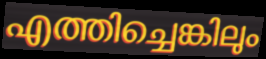
എത്തിച്ചെങ്കിലും